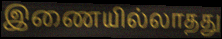
இணையில்லாதது